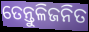
ତେନ୍ତୁଳିଜନିତ